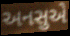
અનસુએ